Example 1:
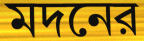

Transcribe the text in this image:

মদনের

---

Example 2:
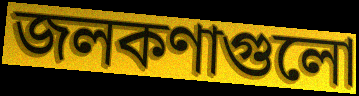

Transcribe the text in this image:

জলকণাগুলো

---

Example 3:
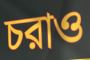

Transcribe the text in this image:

চরাও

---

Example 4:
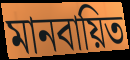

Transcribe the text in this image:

মানবায়িত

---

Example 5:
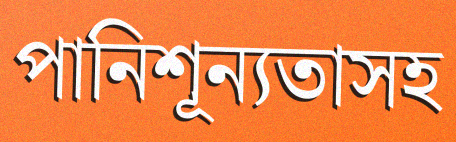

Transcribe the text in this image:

পানিশূন্যতাসহ